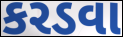
કરડવા